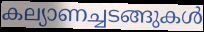
കല്യാണച്ചടങ്ങുകൾ